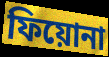
ফিয়োনা